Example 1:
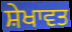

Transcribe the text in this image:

ਸ਼ੇਖਾਵਤ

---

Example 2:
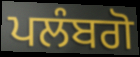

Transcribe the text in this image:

ਪਲੰਬਗੋ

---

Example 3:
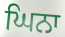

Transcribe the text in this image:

ਘਿਨਾ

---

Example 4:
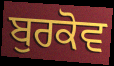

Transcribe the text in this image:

ਬੁਰਕੋਵ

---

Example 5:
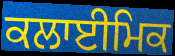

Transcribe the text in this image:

ਕਲਾਈਮਿਕ